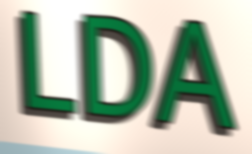
LDA